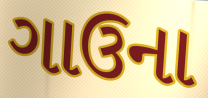
ગાઉના